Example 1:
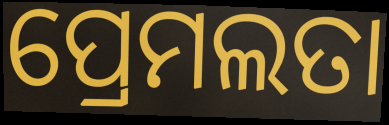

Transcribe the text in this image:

ପ୍ରେମଲତା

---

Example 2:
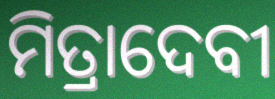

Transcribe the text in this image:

ମିତ୍ରାଦେବୀ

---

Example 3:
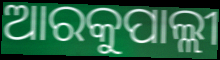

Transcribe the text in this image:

ଆରକୁପାଲ୍ଲୀ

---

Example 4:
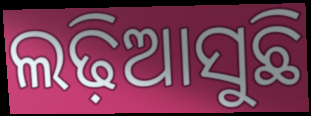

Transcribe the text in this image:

ଲଢ଼ିଆସୁଛି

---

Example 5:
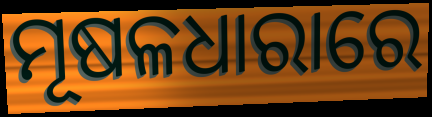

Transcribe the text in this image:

ମୂଷଳଧାରାରେ